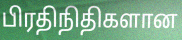
பிரதிநிதிகளான